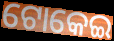
ଟୋକେଇ